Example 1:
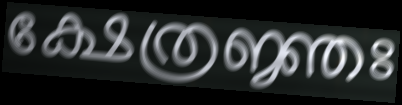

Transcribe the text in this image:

ക്ഷേത്രജ്ഞഃ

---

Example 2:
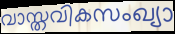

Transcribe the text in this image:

വാസ്തവികസംഖ്യാ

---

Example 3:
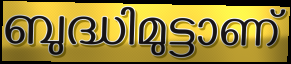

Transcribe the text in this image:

ബുദ്ധിമുട്ടാണ്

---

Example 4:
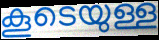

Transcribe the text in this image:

കൂടെയുള്ള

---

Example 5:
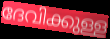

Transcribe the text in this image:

ദേവിക്കുള്ള